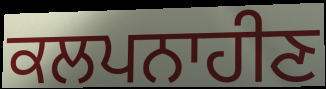
ਕਲਪਨਾਹੀਣ